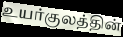
உயர்குலத்தின்